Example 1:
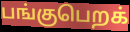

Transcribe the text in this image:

பங்குபெறக்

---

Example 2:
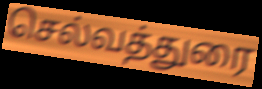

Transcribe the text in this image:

செல்வத்துரை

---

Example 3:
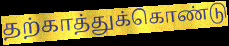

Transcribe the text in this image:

தற்காத்துக்கொண்டு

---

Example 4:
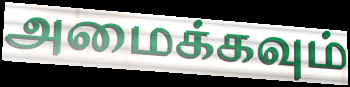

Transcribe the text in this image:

அமைக்கவும்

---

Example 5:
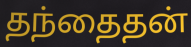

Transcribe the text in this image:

தந்தைதன்